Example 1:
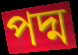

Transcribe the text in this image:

পদ্ম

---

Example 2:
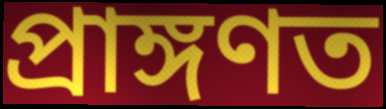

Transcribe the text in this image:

প্ৰাঙ্গণত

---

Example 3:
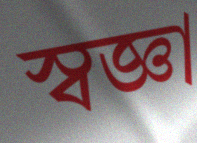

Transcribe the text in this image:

স্বজ্ঞা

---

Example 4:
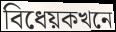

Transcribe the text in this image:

বিধেয়কখনে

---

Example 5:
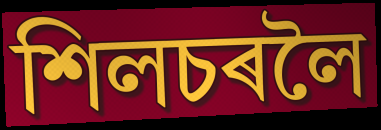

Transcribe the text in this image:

শিলচৰলৈ